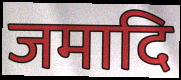
जमादि